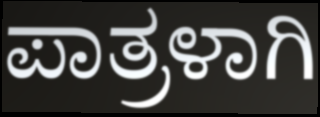
ಪಾತ್ರಳಾಗಿ